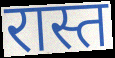
रास्त